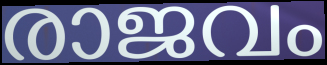
രാജവം